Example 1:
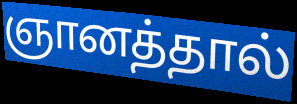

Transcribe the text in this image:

ஞானத்தால்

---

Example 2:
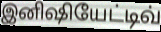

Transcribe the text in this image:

இனிஷியேட்டிவ்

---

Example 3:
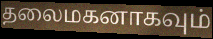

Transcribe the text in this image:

தலைமகனாகவும்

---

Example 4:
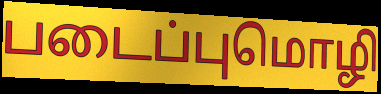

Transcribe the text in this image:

படைப்புமொழி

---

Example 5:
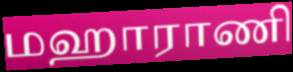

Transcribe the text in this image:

மஹாராணி